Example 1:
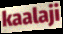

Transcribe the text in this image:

kaalaji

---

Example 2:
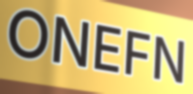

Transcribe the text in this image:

ONEFN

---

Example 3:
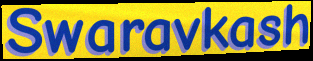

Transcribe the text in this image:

Swaravkash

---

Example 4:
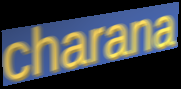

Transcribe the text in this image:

charana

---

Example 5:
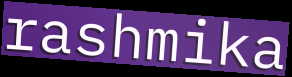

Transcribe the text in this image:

rashmika